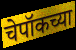
चेपॉकच्या